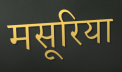
मसूरिया